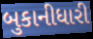
બુકાનીધારી